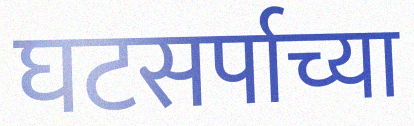
घटसर्पाच्या